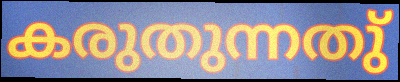
കരുതുന്നതു്